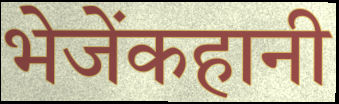
भेजेंकहानी